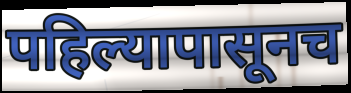
पहिल्यापासूनच